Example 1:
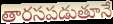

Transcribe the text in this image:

తారసపడుతూనే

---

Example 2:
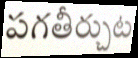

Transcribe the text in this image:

పగతీర్చుట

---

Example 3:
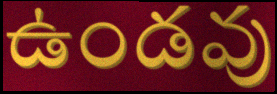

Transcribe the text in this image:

ఉండవు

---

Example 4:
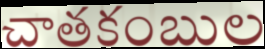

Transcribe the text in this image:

చాతకంబుల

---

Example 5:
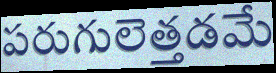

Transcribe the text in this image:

పరుగులెత్తడమే